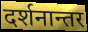
दर्शनान्तर